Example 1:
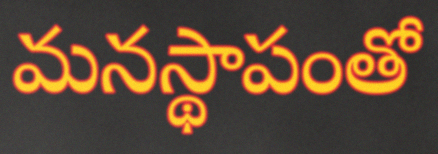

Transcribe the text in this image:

మనస్థాపంతో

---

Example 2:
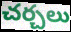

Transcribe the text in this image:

చర్చలు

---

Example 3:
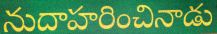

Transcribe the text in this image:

నుదాహరించినాడు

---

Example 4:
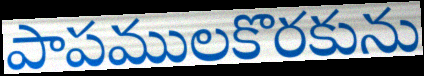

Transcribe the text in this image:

పాపములకొరకును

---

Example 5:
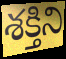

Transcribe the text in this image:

శక్తిని